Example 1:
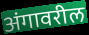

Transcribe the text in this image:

अंगावरील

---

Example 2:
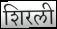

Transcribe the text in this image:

शिरली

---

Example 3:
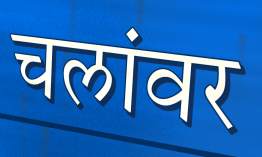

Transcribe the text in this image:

चलांवर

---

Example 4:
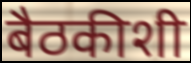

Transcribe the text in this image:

बैठकीशी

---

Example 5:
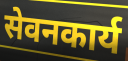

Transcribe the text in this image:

सेवनकार्य